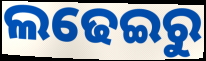
ଲଢେଇରୁ